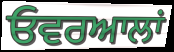
ਓਵਰਆਲਾਂ